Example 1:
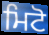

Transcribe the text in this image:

ਮਿਟੋ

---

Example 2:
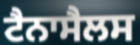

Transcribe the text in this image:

ਟੈਨਾਸੈਲਸ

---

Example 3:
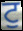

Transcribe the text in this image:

ਟੁ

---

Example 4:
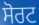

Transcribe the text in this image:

ਸੋਰਟ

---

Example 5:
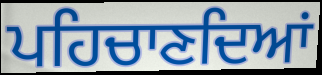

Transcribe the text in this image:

ਪਹਿਚਾਣਦਿਆਂ